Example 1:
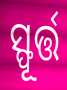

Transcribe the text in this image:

ସ୍ଫୂର୍ତ୍ତ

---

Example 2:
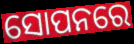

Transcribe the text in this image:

ସୋପନରେ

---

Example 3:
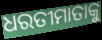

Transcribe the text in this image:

ଧରତୀମାତାକୁ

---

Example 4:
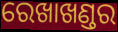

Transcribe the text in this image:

ରେଖାଖଣ୍ଡର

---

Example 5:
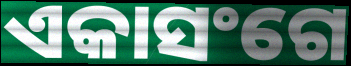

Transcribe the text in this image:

ଏକାସଂଗେ